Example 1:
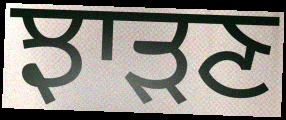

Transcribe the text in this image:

ਝਾੜਣ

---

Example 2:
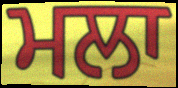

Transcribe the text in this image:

ਮਲਾ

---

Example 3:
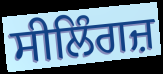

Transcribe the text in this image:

ਸੀਲਿੰਗਜ਼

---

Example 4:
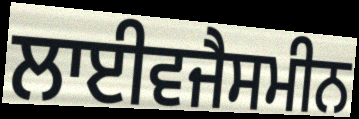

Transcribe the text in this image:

ਲਾਈਵਜੈਸਮੀਨ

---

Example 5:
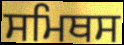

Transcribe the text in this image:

ਸਮਿਥਸ